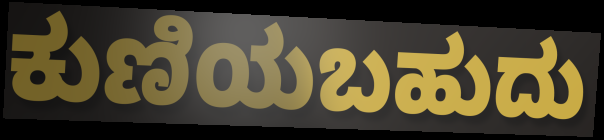
ಕುಣಿಯಬಹುದು